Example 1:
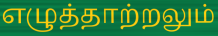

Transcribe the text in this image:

எழுத்தாற்றலும்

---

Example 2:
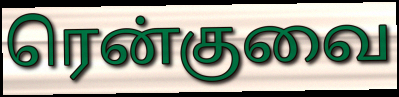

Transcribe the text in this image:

ரென்குவை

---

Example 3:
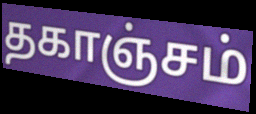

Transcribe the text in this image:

தகாஞ்சம்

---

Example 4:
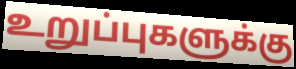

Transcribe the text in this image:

உறுப்புகளுக்கு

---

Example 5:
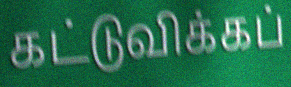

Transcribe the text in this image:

கட்டுவிக்கப்